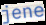
jene